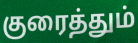
குரைத்தும்